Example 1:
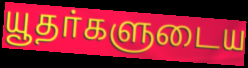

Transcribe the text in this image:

யூதர்களுடைய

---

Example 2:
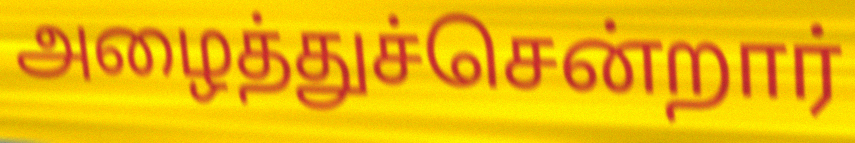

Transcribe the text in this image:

அழைத்துச்சென்றார்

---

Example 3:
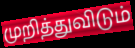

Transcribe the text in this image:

முறித்துவிடும்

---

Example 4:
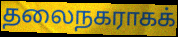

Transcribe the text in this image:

தலைநகராகக்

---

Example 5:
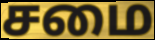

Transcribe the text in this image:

சமை